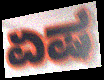
ಏಷ